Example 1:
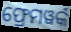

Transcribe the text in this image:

ଫ୍ରେମୱର୍କ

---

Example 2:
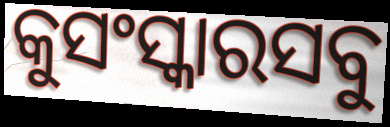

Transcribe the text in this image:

କୁସଂସ୍କାରସବୁ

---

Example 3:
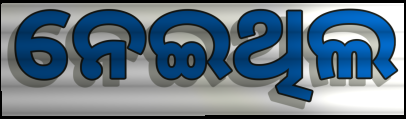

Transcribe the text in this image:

ନେଇଥିଲ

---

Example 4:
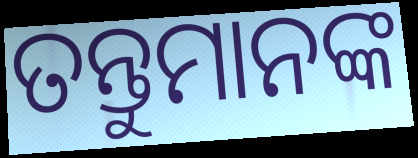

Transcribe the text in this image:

ତନ୍ତୁମାନଙ୍କ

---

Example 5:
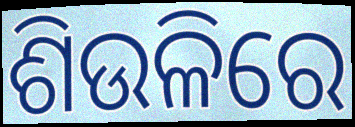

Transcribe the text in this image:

ଶିଉଳିରେ